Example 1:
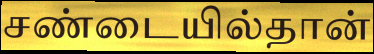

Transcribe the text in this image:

சண்டையில்தான்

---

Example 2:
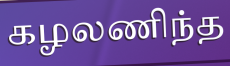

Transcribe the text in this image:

கழலணிந்த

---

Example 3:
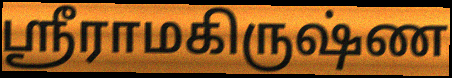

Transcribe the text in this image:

ஸ்ரீராமகிருஷ்ண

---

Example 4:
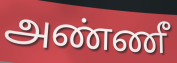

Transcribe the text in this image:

அண்ணீ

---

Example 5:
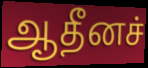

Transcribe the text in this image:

ஆதீனச்